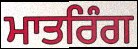
ਮਾਤਰਿੰਗ